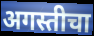
अगस्तीचा